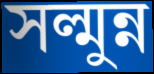
সল্মুন্ন